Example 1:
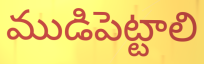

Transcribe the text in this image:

ముడిపెట్టాలి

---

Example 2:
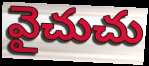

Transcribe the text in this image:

వైచుచు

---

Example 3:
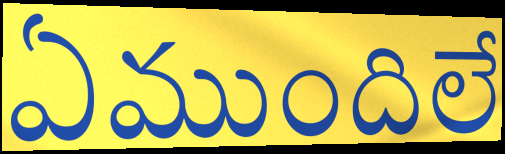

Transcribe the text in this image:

ఏముందిలే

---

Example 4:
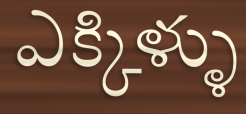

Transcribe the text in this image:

ఎక్కిళ్ళు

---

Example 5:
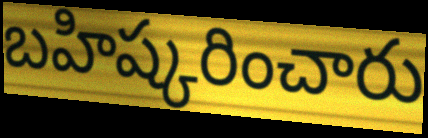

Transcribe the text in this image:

బహిష్కరించారు